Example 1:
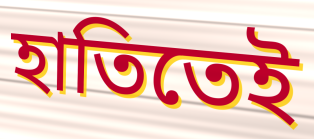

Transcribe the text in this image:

হাতিতেই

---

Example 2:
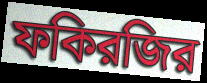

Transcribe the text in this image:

ফকিরজির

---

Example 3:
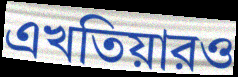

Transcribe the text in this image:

এখতিয়ারও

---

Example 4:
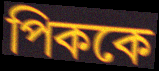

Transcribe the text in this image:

পিককে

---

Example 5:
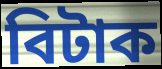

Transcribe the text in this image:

বিটাক